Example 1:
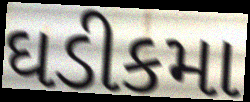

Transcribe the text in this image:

ઘડીકમા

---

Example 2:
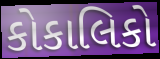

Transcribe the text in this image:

કોકાલિકો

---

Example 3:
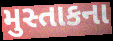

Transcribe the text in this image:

મુસ્તાકના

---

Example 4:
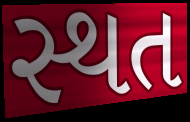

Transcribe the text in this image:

સ્થત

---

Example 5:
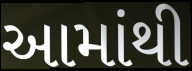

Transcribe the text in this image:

આમાંથી